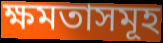
ক্ষমতাসমূহ